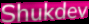
Shukdev